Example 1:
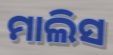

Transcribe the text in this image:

ମାଲିସ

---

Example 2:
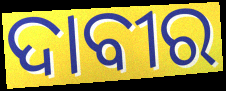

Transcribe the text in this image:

ଦାବୀର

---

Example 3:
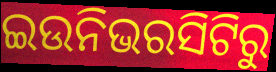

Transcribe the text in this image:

ଇଉନିଭରସିଟିରୁ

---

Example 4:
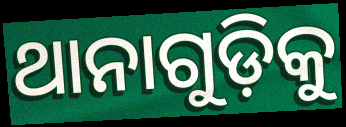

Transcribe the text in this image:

ଥାନାଗୁଡ଼ିକୁ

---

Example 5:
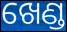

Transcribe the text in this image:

ଖେଣ୍ଡ